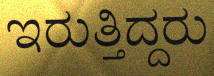
ಇರುತ್ತಿದ್ದರು